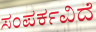
ಸಂಪರ್ಕವಿದೆ